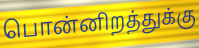
பொன்னிறத்துக்கு